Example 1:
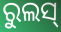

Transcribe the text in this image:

ରୁଲସ୍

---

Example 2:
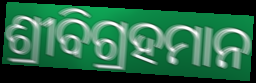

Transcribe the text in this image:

ଶ୍ରୀବିଗ୍ରହମାନ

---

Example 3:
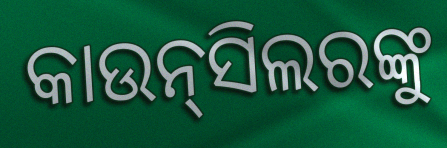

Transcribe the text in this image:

କାଉନ୍‌ସିଲରଙ୍କୁ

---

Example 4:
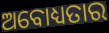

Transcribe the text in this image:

ଅବୋଧ୍ୟତାର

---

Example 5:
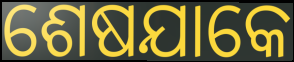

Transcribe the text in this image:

ଶେଷଯାକେ